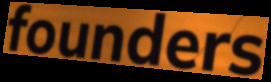
founders